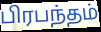
பிரபந்தம்